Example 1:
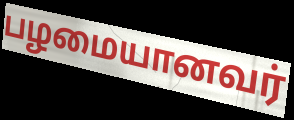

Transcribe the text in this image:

பழமையானவர்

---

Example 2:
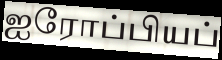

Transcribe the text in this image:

ஐரோப்பியப்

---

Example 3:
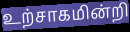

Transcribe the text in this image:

உற்சாகமின்றி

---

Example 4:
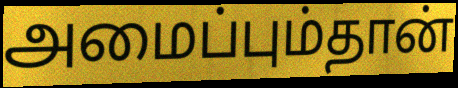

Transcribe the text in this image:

அமைப்பும்தான்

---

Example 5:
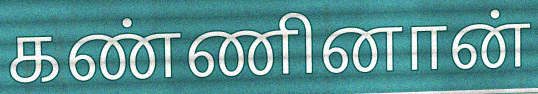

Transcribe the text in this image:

கண்ணினான்